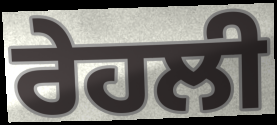
ਰੇਹਲੀ